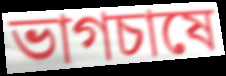
ভাগচাষে